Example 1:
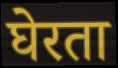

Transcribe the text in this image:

घेरता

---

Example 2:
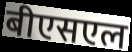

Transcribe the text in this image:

बीएसएल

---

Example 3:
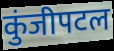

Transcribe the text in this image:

कुंजीपटल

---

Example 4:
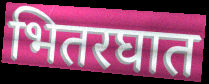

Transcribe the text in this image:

भितरघात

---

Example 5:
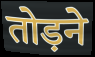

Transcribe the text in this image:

तोड़ने